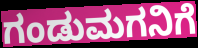
ಗಂಡುಮಗನಿಗೆ